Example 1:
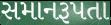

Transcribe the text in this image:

સમાનરૂપતા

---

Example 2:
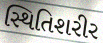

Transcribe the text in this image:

સ્થિતિશરીર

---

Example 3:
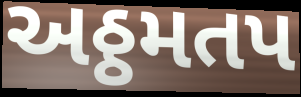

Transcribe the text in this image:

અઠ્ઠમતપ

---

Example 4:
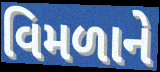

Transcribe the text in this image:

વિમળાને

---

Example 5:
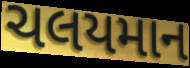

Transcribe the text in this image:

ચલયમાન